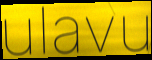
ulavu